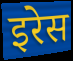
इरेस